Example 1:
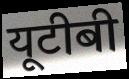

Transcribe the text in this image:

यूटीबी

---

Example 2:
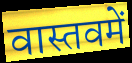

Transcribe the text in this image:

वास्तवमें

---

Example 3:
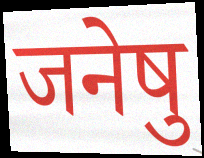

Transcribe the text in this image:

जनेषु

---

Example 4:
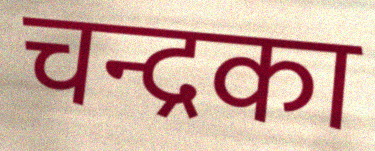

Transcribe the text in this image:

चन्द्रका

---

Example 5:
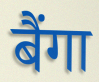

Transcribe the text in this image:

बैंगा